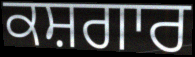
ਕਸ਼ਗਾਰ